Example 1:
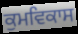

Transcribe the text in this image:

ਕੁਮਵਿਕਾਸ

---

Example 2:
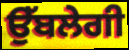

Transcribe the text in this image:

ਉੱਬਲੇਗੀ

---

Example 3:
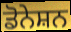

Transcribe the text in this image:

ਡੋਨੇਸ਼ਨ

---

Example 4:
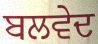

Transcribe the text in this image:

ਬਲਵੇਦ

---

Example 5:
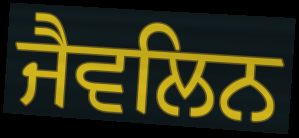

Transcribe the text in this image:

ਜੈਵਲਿਨ